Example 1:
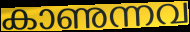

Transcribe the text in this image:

കാണുന്നവ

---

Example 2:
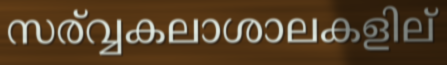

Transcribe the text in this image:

സര്വ്വകലാശാലകളില്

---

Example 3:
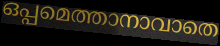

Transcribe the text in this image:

ഒപ്പമെത്താനാവാതെ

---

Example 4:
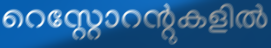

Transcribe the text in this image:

റെസ്റ്റോറന്റുകളിൽ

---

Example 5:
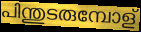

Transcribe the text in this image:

പിന്തുടരുമ്പോള്